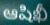
ఆషిఖీ